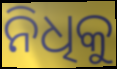
ନିଧିକୁ